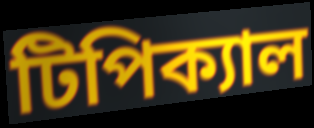
টিপিক্যাল